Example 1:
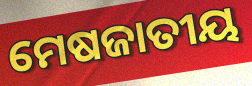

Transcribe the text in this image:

ମେଷଜାତୀୟ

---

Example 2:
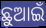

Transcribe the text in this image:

ଛୁଆଇଁ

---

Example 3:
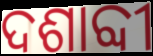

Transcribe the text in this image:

ଦଶାବ୍ଦୀ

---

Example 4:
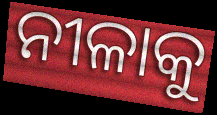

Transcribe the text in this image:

ନୀଳାକୁ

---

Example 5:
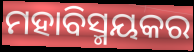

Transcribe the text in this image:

ମହାବିସ୍ମୟକର